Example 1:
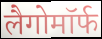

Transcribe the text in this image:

लैगोमॉर्फ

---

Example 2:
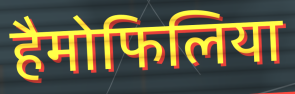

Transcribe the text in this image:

हैमोफिलिया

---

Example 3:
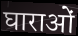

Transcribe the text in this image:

घाराओं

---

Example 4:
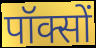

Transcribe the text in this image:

पॉक्सों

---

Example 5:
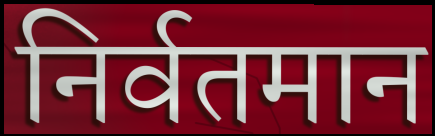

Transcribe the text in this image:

निर्वतमान